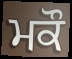
ਮਕੌ